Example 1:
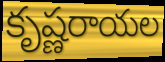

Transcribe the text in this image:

కృష్ణరాయల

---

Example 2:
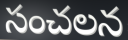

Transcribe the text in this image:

సంచలన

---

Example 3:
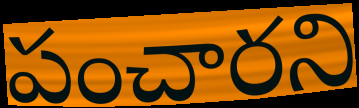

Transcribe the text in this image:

పంచారని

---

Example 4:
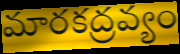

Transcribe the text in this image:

మారకద్రవ్యం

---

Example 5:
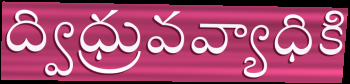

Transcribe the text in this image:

ద్విధ్రువవ్యాధికి